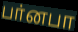
பர்னபா